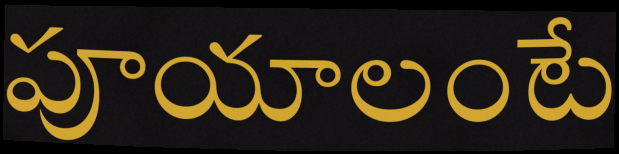
పూయాలంటే